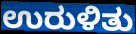
ಉರುಳಿತು